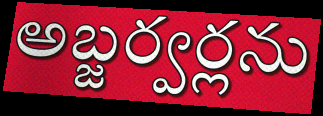
అబ్జర్వర్లను